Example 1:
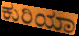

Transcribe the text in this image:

ಕುರಿಯಾ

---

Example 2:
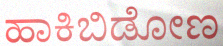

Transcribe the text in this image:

ಹಾಕಿಬಿಡೋಣ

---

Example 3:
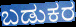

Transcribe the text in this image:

ಬಡುಕರ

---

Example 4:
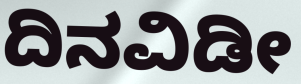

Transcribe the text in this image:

ದಿನವಿಡೀ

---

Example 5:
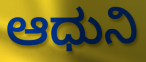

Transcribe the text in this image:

ಆಧುನಿ